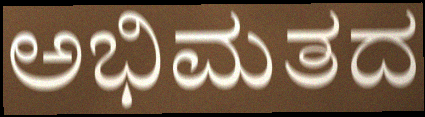
ಅಭಿಮತದ